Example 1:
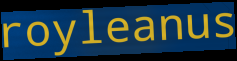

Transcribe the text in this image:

royleanus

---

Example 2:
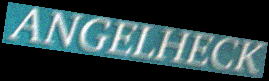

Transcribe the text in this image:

ANGELHECK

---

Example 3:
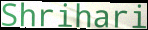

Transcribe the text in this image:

Shrihari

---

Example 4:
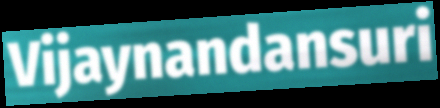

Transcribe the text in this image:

Vijaynandansuri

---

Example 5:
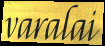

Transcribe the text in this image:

varalai